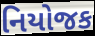
નિયોજક